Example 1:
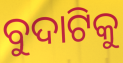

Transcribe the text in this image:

ବୁଦାଟିକୁ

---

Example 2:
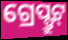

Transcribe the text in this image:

ଗ୍ରେପ୍ଫ୍ରୁଟ୍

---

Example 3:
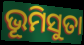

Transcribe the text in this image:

ଭୂମିସୁତା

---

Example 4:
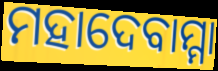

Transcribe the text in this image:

ମହାଦେବାମ୍ମା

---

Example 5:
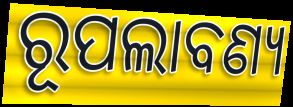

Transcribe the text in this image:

ରୂପଲାବଣ୍ୟ